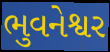
ભુવનેશ્વર